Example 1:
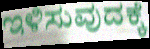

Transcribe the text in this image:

ಇಳಿಸುವುದಕ್ಕೆ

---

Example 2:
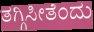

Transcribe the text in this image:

ತಗ್ಗಿಸೀತೆಂದು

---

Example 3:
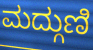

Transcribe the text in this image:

ಮದ್ಗುಣಿ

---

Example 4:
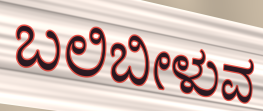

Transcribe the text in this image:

ಬಲಿಬೀಳುವ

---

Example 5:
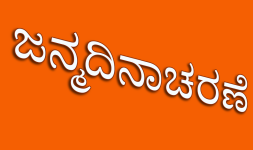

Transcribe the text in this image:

ಜನ್ಮದಿನಾಚರಣೆ